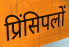
प्रिंसिपलों